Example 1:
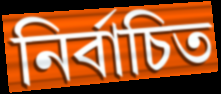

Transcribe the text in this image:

নির্বাচিত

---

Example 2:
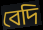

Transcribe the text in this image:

বেদি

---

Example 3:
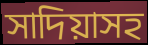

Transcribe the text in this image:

সাদিয়াসহ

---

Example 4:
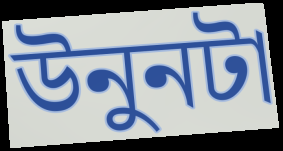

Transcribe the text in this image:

উনুনটা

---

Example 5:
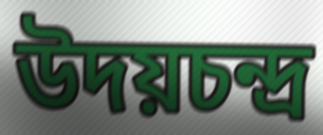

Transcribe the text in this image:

উদয়চন্দ্র